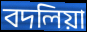
বদলিয়া